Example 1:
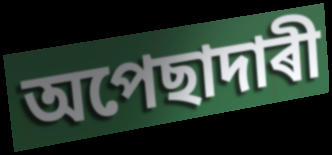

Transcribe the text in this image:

অপেছাদাৰী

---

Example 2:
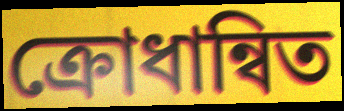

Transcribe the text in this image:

ক্ৰোধান্বিত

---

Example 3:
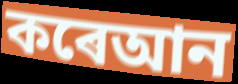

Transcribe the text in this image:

কৰেআন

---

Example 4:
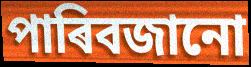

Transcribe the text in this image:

পাৰিবজানো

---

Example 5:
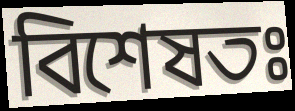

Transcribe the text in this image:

বিশেষতঃ